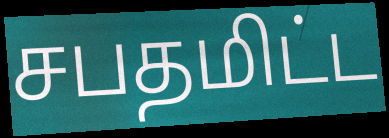
சபதமிட்ட